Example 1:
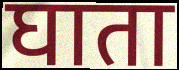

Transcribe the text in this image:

घाता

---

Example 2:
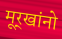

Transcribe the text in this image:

मूर्खांनो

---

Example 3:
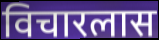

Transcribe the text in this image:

विचारलास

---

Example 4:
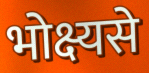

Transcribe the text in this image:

भोक्ष्यसे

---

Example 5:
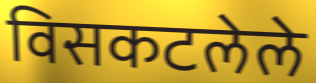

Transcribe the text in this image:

विसकटलेले